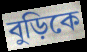
বুড়িকে